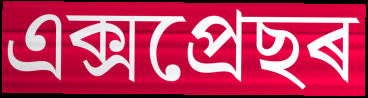
এক্সপ্ৰেছৰ